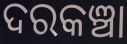
ଦରକଞ୍ଚା